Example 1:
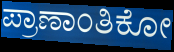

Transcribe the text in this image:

ಪ್ರಾಣಾಂತಿಕೋ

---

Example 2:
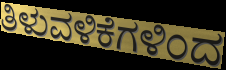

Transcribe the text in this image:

ತಿಳುವಳಿಕೆಗಳಿಂದ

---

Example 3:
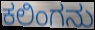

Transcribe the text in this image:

ಕಲಿಂಗನು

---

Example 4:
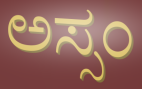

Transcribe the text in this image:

ಅಸ್ಸಂ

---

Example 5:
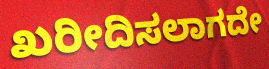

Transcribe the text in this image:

ಖರೀದಿಸಲಾಗದೇ